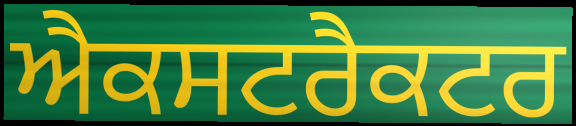
ਐਕਸਟਰੈਕਟਰ